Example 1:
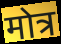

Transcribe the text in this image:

मोत्र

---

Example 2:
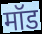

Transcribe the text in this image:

मॉड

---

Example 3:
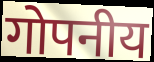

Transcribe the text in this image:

गोपनीय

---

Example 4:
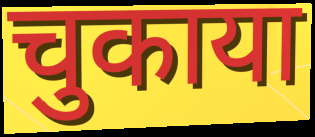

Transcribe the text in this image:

चुकाया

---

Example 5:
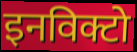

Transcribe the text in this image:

इनविक्टो